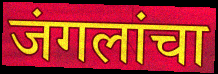
जंगलांचा